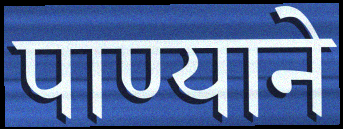
पाण्याने